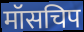
मॉसचिप